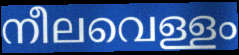
നീലവെള്ളം